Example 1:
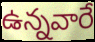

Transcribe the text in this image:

ఉన్నవారే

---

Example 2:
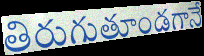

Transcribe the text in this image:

తిరుగుతూండగానే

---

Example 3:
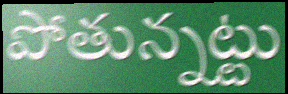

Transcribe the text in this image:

పోతున్నట్టు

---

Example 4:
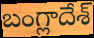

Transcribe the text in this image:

బంగ్లాదేశ్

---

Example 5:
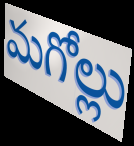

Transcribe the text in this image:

మగోల్లు